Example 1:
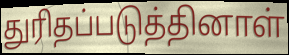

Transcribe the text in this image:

துரிதப்படுத்தினாள்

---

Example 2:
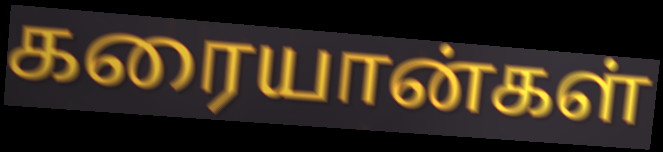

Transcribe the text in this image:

கரையான்கள்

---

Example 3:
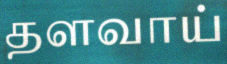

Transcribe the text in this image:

தளவாய்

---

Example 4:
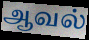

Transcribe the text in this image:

ஆவல்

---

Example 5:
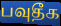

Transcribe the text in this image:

பவுதீக